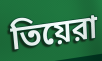
তিয়েরা